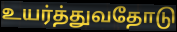
உயர்த்துவதோடு